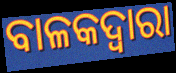
ବାଳକଦ୍ୱାରା